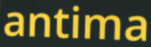
antima